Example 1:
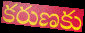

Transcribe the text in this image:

కరుణకు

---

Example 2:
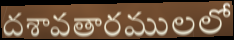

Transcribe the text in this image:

దశావతారములలో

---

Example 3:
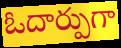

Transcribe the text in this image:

ఓదార్పుగా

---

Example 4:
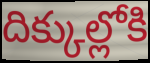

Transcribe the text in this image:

దిక్కుల్లోకి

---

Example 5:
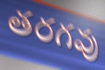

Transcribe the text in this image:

తరగవు